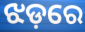
ଝଡ଼ରେ